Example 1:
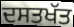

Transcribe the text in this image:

ਦਸਤਖੱਤ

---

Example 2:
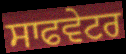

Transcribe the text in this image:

ਸਾਫਵੇਟਰ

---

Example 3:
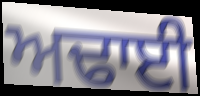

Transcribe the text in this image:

ਅਢਾਈ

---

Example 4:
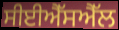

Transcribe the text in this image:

ਸੀਈਐੱਸਐੱਲ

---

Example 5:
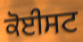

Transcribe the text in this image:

ਕੋਈਸਟ